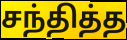
சந்தித்த